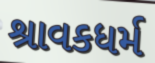
શ્રાવકધર્મ